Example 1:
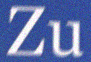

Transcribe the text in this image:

Zu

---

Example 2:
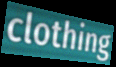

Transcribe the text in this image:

clothing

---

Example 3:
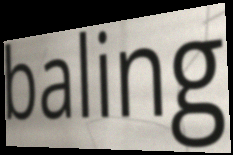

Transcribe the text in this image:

baling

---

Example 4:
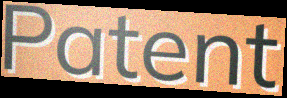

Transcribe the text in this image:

Patent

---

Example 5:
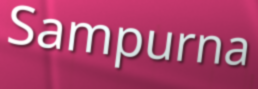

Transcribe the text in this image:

Sampurna